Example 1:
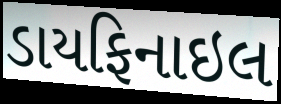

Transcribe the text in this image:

ડાયફિનાઇલ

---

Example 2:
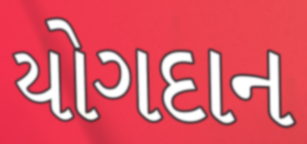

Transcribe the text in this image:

યોગદાન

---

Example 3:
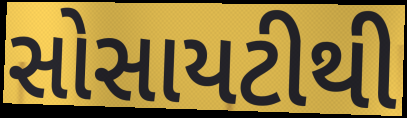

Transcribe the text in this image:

સોસાયટીથી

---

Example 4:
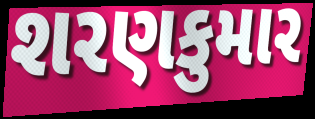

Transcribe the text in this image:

શરણકુમાર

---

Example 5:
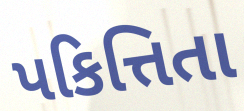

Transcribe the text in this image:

પકિત્તિતા